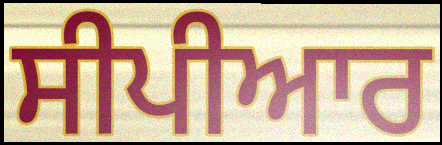
ਸੀਪੀਆਰ